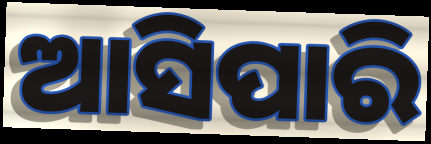
ଆସିପାରି